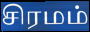
சிரமம்